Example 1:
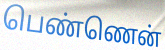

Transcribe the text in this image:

பெண்ணென்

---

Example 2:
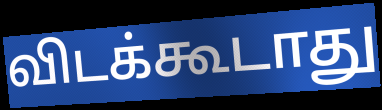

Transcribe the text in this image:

விடக்கூடாது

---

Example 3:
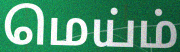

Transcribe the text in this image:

மெய்ம்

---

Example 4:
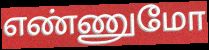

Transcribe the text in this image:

எண்ணுமோ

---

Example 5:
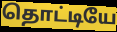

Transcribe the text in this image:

தொட்டியே